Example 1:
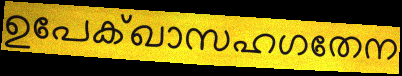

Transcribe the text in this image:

ഉപേക്ഖാസഹഗതേന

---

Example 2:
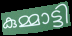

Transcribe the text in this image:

കുമ്മാട്ടി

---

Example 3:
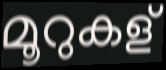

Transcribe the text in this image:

മൂറുകള്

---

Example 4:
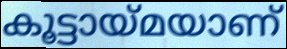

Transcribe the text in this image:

കൂട്ടായ്മയാണ്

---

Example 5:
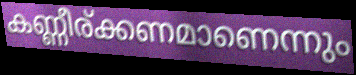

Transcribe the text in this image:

കണ്ണീര്ക്കണമാണെന്നും